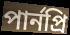
পার্নপ্রি